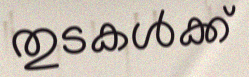
തുടകൾക്ക്